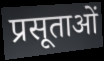
प्रसूताओं